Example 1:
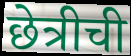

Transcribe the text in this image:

छेत्रीची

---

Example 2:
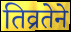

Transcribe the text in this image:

तिव्रतेने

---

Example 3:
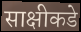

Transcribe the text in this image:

साक्षीकडे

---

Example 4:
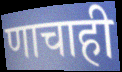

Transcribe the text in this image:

णाचाही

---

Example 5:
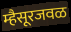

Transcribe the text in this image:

म्हैसूरजवळ